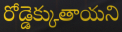
రోడ్డెక్కుతాయని